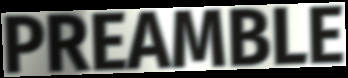
PREAMBLE